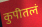
कुपीतलं